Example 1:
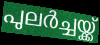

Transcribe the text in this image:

പുലർച്ചയ്ക്ക്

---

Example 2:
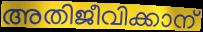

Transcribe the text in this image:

അതിജീവിക്കാന്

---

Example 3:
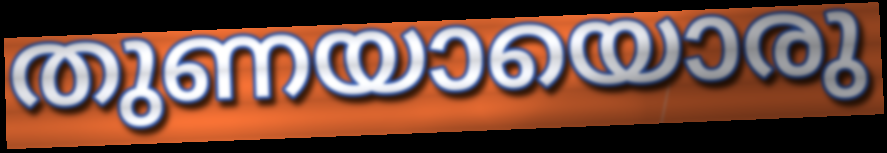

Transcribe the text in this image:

തുണയായൊരു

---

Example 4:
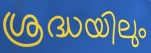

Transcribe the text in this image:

ശ്രദ്ധയിലും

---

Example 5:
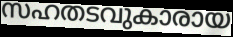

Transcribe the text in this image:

സഹതടവുകാരായ